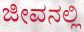
ಜೀವನಲ್ಲಿ